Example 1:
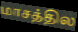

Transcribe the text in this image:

மாசத்தில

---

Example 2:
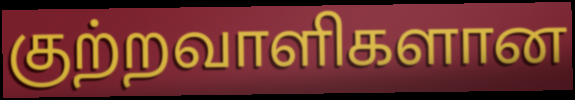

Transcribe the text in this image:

குற்றவாளிகளான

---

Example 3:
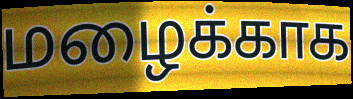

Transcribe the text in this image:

மழைக்காக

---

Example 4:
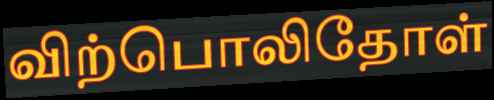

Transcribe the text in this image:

விற்பொலிதோள்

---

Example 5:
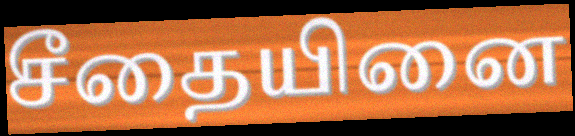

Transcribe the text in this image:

சீதையினை